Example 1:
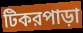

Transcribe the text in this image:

টিকরপাড়া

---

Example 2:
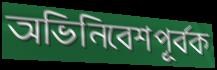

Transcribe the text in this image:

অভিনিবেশপূর্বক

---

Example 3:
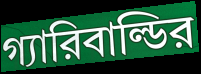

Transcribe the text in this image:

গ্যারিবাল্ডির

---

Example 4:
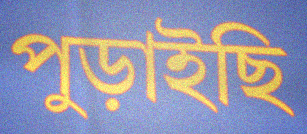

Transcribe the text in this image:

পুড়াইছি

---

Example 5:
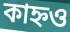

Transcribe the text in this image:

কাহ্নও